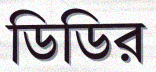
ডিডির